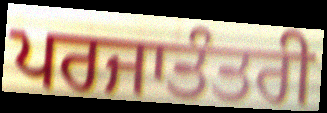
ਪਰਜਾਤੰਤਰੀ